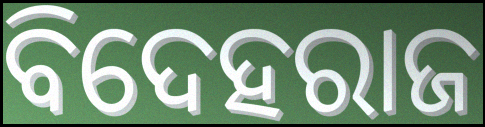
ବିଦେହରାଜ